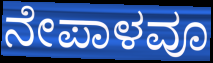
ನೇಪಾಳವೂ